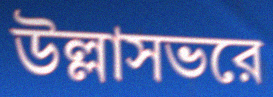
উল্লাসভরে